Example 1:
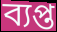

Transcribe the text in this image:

ব্যপ্ত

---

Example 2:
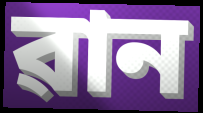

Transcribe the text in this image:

ৱান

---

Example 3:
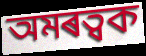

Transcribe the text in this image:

অমৰত্বক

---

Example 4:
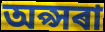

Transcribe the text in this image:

অপ্সৰা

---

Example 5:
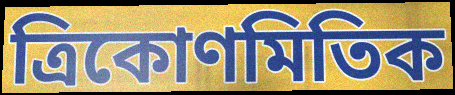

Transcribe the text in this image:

ত্ৰিকোণমিতিক